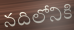
నదిలోనికి